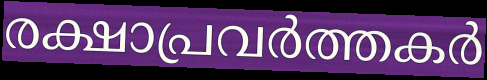
രക്ഷാപ്രവർത്തകർ